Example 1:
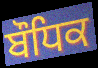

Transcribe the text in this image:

ਬੌਧਿਕ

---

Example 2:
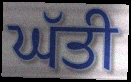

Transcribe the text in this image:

ਘੱਤੀ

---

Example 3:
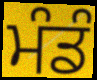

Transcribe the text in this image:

ਮੰਡੰ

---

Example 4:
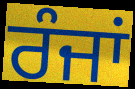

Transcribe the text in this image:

ਰੰਜਾਂ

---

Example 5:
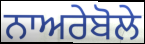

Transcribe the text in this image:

ਨਾਅਰੇਬੋਲੇ